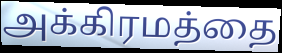
அக்கிரமத்தை